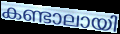
കണ്ടാലായി